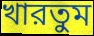
খারতুম